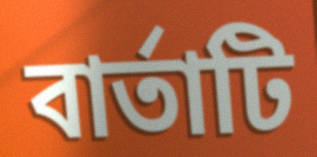
বার্তাটি